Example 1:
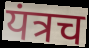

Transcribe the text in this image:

यंत्रच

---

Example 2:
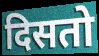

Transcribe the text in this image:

दिसतो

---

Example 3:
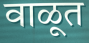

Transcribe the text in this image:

वाळूत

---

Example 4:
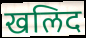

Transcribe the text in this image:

खलिद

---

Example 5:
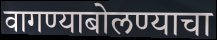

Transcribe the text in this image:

वागण्याबोलण्याचा